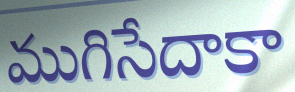
ముగిసేదాకా